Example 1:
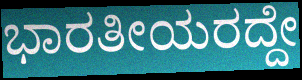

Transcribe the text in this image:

ಭಾರತೀಯರದ್ದೇ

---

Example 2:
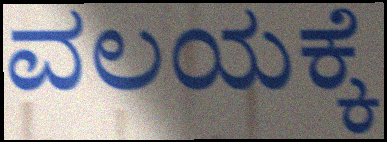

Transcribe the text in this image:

ವಲಯಕ್ಕೆ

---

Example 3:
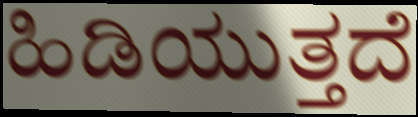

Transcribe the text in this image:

ಹಿಡಿಯುತ್ತದೆ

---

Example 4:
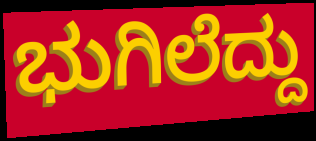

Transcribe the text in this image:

ಭುಗಿಲೆದ್ದು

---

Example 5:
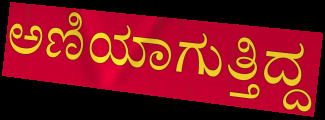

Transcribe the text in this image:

ಅಣಿಯಾಗುತ್ತಿದ್ದ